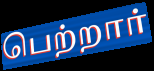
பெற்றார்